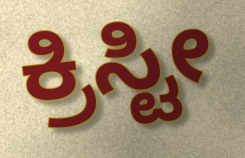
ಕ್ರಿಸ್ಟೀ